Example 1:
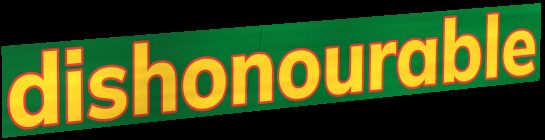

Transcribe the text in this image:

dishonourable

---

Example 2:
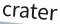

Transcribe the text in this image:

crater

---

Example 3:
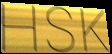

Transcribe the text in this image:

HSK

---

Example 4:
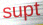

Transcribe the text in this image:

supt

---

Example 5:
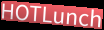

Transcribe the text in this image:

HOTLunch